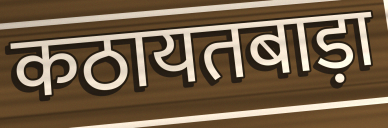
कठायतबाड़ा